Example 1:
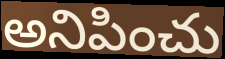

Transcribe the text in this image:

అనిపించు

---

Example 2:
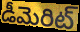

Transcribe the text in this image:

డీమెరిట్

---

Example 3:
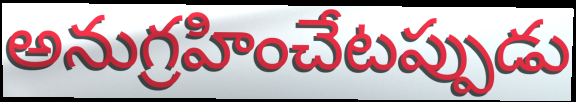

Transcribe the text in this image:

అనుగ్రహించేటప్పుడు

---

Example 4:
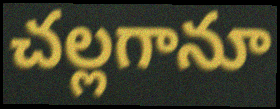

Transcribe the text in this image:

చల్లగానూ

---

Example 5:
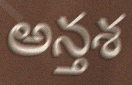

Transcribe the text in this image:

అన్తశ